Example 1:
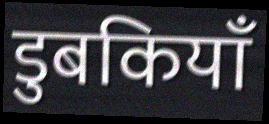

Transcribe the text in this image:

डुबकियाँ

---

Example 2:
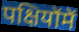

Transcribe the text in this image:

पक्षियोंमें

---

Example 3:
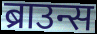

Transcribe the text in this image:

ब्राउन्स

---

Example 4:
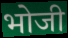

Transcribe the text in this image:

भोजी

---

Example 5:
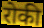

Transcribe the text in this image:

रोकी